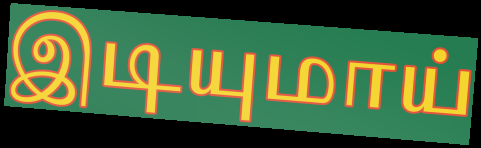
இடியுமாய்